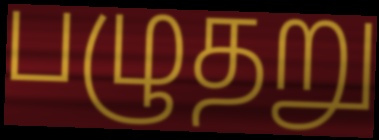
பழுதறு